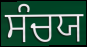
ਸੰਚਯ